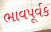
ભાવપૂર્વક